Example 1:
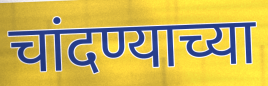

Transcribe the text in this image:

चांदण्याच्या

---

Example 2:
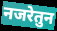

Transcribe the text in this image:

नजरेतुन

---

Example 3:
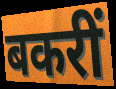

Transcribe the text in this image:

बकरीं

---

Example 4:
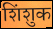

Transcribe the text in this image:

शिंशुक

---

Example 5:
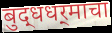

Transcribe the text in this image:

बुद्धधर्माचा